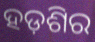
ହଡ଼ଶିର